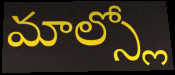
మాల్స్లో